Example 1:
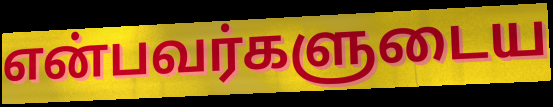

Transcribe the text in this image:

என்பவர்களுடைய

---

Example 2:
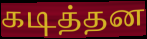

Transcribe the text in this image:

கடித்தன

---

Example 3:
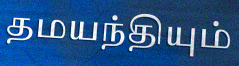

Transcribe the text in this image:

தமயந்தியும்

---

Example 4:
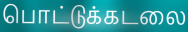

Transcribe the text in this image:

பொட்டுக்கடலை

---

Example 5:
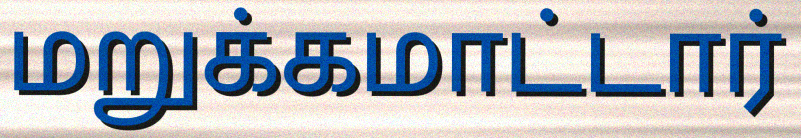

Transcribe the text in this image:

மறுக்கமாட்டார்